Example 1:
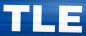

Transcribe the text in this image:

TLE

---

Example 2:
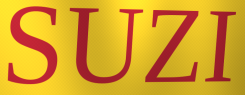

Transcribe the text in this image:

SUZI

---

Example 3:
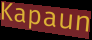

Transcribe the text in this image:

Kapaun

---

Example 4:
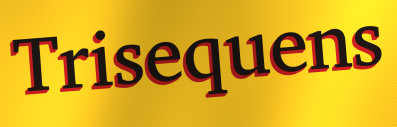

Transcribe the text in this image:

Trisequens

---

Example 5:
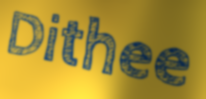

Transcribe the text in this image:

Dithee